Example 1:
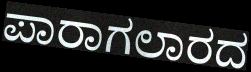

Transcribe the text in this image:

ಪಾರಾಗಲಾರದ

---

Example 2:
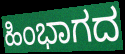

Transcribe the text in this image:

ಹಿಂಭಾಗದ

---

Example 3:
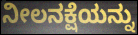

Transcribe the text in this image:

ನೀಲನಕ್ಷೆಯನ್ನು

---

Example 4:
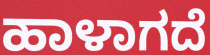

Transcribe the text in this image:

ಹಾಳಾಗದೆ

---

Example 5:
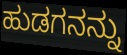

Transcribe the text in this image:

ಹುಡಗನನ್ನು